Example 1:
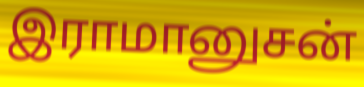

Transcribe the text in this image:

இராமானுசன்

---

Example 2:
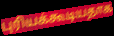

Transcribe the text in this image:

புரியக்கூடியதாக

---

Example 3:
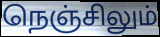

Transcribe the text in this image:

நெஞ்சிலும்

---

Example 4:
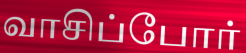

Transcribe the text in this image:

வாசிப்போர்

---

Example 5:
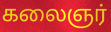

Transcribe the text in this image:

கலைஞர்